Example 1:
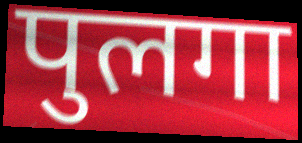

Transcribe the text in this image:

पुलगा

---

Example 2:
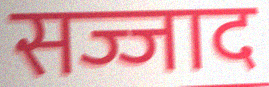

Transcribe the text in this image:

सज्‍जाद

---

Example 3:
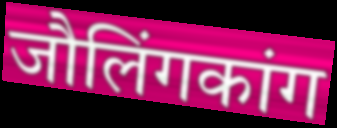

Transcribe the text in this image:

जौलिंगकांग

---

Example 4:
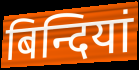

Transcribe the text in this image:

बिन्दियां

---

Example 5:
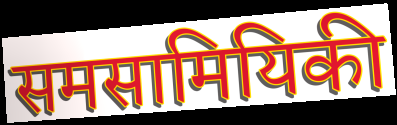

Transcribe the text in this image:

समसामियिकी